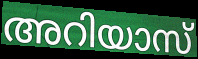
അറിയാസ്